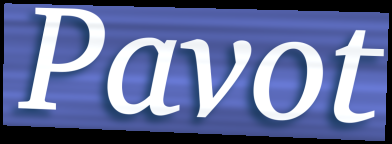
Pavot